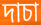
দাচা